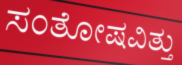
ಸಂತೋಷವಿತ್ತು